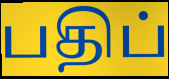
பதிப்